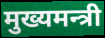
मुख्यमन्त्री